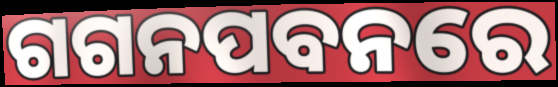
ଗଗନପବନରେ